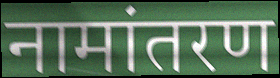
नामांतरण